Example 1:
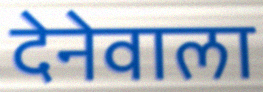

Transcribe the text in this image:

देनेवाला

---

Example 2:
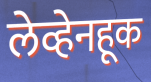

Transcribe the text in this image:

लेव्हेनहूक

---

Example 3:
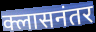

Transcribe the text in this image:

क्लासनंतर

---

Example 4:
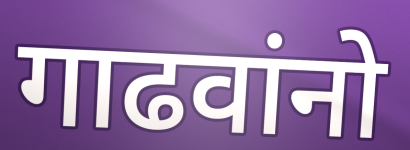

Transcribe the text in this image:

गाढवांनो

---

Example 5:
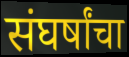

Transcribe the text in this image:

संघर्षांचा